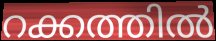
റക്കത്തിൽ